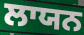
ਲਾਯਨ